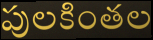
పులకింతల